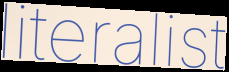
literalist